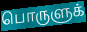
பொருளுக்